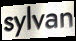
sylvan